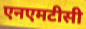
एनएमटीसी